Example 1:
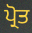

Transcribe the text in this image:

ਪ੍ਰੋਤ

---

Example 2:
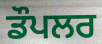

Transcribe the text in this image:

ਡੌਪਲਰ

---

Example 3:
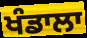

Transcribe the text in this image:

ਖੰਡਾਲਾ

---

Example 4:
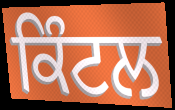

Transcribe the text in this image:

ਕਿੰਟਲ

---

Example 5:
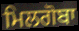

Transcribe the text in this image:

ਮਿਲਗੋਬਾ